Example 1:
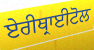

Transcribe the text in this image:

ਏਰੀਥ੍ਰਾਈਟੋਲ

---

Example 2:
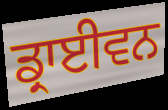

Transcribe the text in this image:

ਡ੍ਰਾਈਵਨ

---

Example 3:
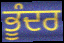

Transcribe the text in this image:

ਭੂੰਦਰ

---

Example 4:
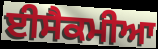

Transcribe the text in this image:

ਈਸੈਕਮੀਆ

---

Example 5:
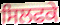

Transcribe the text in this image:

ਸਿਲਫਕੇ